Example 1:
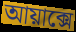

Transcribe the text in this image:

আয়াক্সে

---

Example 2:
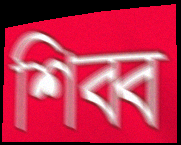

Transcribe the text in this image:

শিব্ব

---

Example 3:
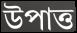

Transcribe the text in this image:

উপাত্ত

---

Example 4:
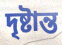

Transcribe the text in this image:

দৃষ্টান্ত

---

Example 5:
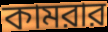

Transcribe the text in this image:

কামরার